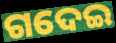
ଗଦେଇ